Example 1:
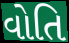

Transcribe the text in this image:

વોતિ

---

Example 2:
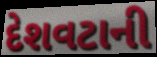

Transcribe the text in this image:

દેશવટાની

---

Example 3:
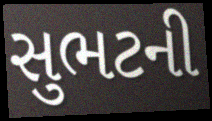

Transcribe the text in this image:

સુભટની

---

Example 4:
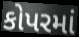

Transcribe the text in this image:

કોપરમાં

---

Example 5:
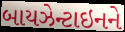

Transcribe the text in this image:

બાયઝેન્ટાઇનને